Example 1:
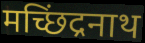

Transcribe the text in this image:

मच्छिंद्रनाथ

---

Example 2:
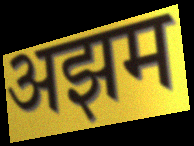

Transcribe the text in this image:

अझम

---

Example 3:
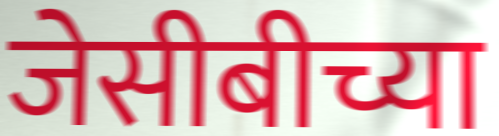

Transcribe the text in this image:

जेसीबीच्या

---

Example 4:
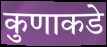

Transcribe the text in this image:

कुणाकडे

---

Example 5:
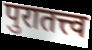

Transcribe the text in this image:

पुरातत्त्व